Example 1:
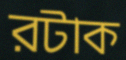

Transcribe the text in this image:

রটাক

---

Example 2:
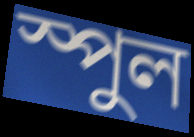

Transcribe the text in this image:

স্পুল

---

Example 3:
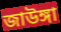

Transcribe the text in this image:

জাউঙ্গা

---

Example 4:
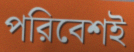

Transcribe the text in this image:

পরিবেশই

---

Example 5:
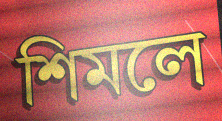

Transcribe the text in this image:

শিমলে